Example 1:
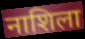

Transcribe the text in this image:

नाशिला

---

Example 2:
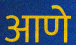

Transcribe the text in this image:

आणे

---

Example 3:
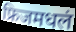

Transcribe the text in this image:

फ्रिजमधलं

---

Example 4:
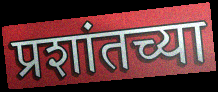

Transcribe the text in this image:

प्रशांतच्या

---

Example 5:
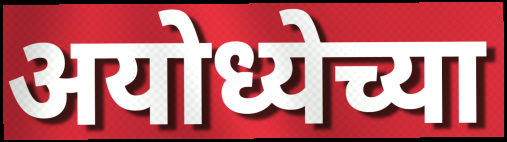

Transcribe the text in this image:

अयोध्येच्या